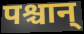
पश्चान्